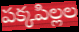
పక్కపిల్లల